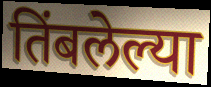
तिंबलेल्या